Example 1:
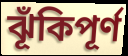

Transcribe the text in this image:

ঝূঁকিপূর্ণ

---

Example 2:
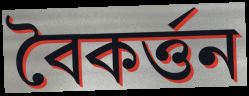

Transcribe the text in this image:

বৈকর্ত্তন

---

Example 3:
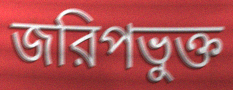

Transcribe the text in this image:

জরিপভুক্ত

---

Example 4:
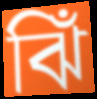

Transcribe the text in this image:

ঝিঁ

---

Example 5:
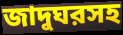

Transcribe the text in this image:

জাদুঘরসহ